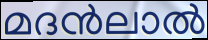
മദൻലാൽ